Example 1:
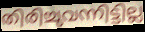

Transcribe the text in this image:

തിരിച്ചുവന്നിട്ടില്ല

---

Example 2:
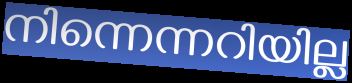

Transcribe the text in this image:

നിന്നെന്നറിയില്ല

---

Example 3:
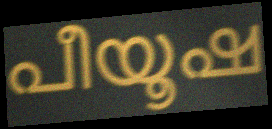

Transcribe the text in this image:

പീയൂഷ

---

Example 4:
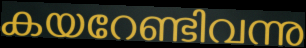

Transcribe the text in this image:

കയറേണ്ടിവന്നു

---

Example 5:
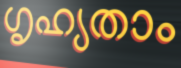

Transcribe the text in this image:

ഗൃഹ്യതാം